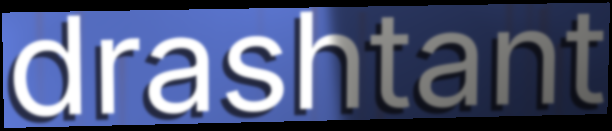
drashtant